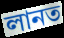
লানত